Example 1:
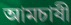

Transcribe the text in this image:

আমচাষী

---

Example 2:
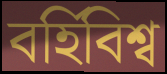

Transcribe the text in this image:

বর্হিবিশ্ব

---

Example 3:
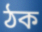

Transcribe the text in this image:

ঠক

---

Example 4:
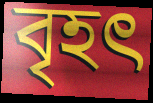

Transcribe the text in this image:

বৃহৎ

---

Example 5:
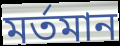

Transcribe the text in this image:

মর্তমান